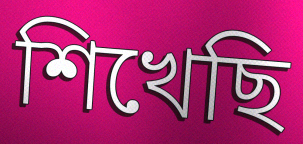
শিখেছি